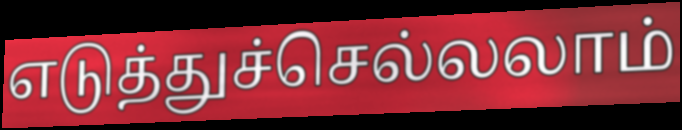
எடுத்துச்செல்லலாம்